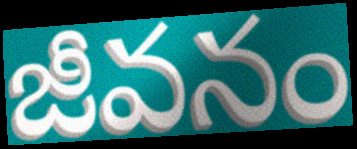
జీవనం